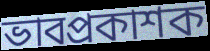
ভাবপ্রকাশক